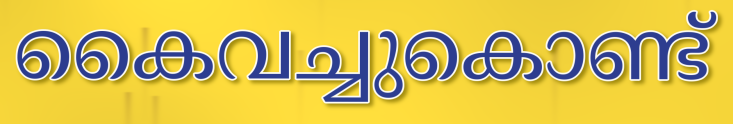
കൈവച്ചുകൊണ്ട്